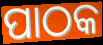
ପାଠକ